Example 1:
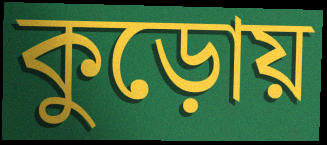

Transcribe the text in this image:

কুড়োয়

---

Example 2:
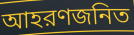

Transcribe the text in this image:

আহরণজনিত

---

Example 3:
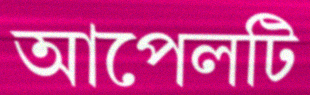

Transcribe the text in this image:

আপেলটি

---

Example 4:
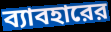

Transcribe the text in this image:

ব্যাবহারের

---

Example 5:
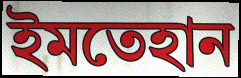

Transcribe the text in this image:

ইমতেহান